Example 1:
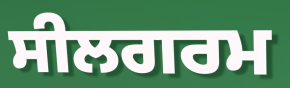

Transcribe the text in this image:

ਸੀਲਗਰਮ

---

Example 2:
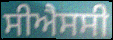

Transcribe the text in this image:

ਸੀਐਸਸੀ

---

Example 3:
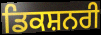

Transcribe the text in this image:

ਡਿਕਸ਼ਨਰੀ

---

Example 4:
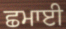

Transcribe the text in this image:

ਛਮਾਈ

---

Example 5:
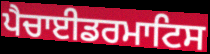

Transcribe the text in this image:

ਪੈਚਾਈਡਰਮਾਟਿਸ